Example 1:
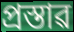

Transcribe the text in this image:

প্ৰস্তাৱ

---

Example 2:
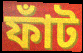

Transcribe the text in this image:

ফাঁট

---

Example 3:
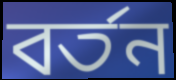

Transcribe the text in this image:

বৰ্তন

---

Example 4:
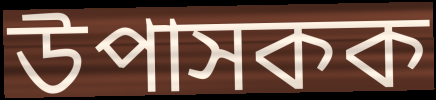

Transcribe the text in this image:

উপাসকক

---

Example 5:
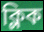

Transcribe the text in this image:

ক্লিক